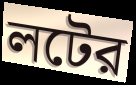
লটের